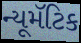
ન્યૂમૅટિક